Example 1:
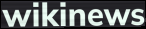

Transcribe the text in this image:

wikinews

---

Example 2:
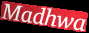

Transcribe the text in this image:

Madhwa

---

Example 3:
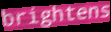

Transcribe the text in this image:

brightens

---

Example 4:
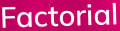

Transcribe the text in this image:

Factorial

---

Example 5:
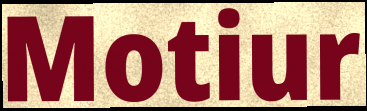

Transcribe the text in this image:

Motiur